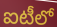
ఐటీలో